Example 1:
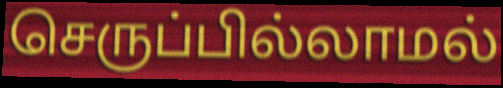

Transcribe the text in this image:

செருப்பில்லாமல்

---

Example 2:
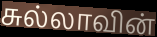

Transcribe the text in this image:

சுல்லாவின்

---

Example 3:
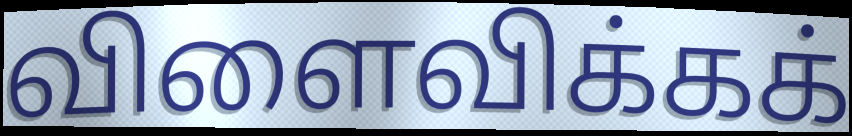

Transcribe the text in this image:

விளைவிக்கக்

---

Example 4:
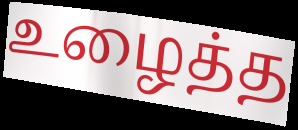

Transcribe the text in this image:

உழைத்த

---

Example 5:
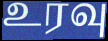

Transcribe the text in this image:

உரவு